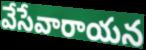
వేసేవారాయన